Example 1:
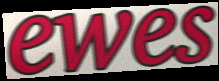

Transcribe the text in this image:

ewes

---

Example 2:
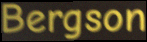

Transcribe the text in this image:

Bergson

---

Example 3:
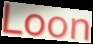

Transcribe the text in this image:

Loon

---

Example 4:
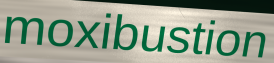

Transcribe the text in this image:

moxibustion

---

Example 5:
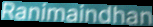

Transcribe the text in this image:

Ranimaindhan